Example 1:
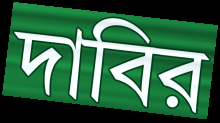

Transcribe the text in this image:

দাবির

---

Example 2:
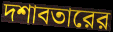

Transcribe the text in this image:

দশাবতারের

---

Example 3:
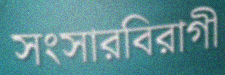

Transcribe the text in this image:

সংসারবিরাগী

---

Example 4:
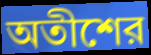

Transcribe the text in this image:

অতীশের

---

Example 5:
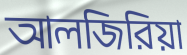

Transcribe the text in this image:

আলজিরিয়া